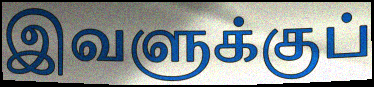
இவளுக்குப்